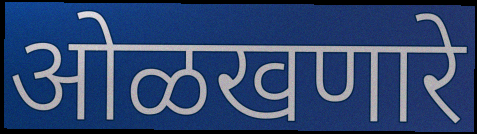
ओळखणारे